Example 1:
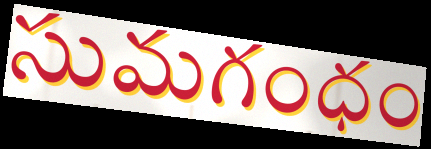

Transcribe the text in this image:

సుమగంధం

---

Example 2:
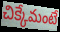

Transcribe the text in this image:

చిక్కేమంటే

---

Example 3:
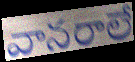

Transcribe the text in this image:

వానరాలే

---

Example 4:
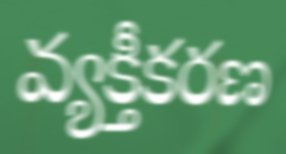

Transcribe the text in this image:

వ్యక్తీకరణ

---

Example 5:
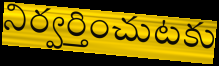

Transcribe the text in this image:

నిర్వర్తించుటకు